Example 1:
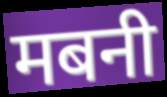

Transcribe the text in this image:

मबनी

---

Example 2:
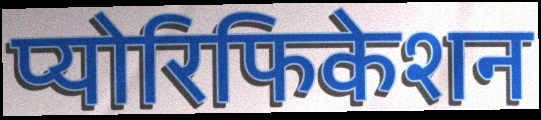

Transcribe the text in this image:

प्योरिफिकेशन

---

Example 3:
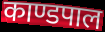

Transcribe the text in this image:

काण्डपाल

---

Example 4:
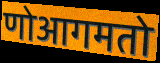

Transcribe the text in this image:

णोआगमतो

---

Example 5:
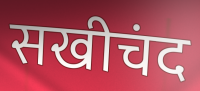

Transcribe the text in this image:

सखीचंद